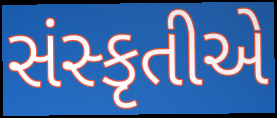
સંસ્કૃતીએ